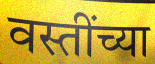
वस्तींच्या